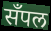
सँपल